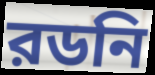
রডনি